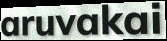
aruvakai